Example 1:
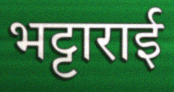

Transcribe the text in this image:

भट्टाराई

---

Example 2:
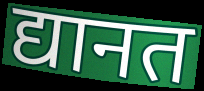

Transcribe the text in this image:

द्यानत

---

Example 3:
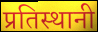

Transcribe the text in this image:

प्रतिस्थानी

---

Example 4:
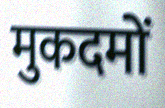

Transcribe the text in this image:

मुकदमों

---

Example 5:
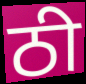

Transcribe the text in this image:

ठी